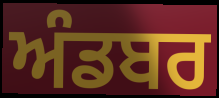
ਅੰਡਬਰ